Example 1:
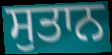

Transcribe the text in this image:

ਸੁਤਾਨ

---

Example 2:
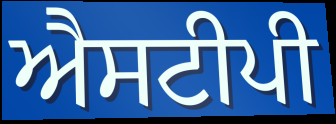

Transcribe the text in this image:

ਐਸਟੀਪੀ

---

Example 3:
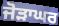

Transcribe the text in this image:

ਜੋੜਾਘਰ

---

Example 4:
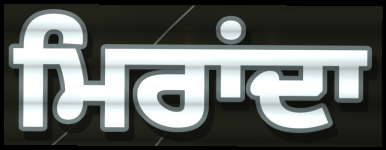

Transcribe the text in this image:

ਮਿਰਾਂਦਾ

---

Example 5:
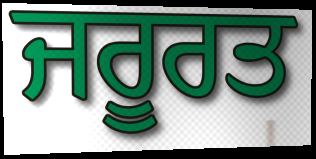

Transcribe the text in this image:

ਜਰੂਰਤ